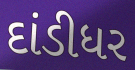
દાંડીધર